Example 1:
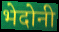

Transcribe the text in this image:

भेदोनी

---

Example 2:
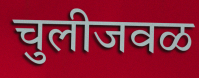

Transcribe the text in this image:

चुलीजवळ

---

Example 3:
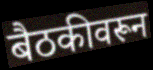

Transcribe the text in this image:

बैठकीवरून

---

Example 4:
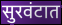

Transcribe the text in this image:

सुरवंटात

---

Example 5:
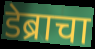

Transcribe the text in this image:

डेब्राचा